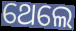
ଥେଲେ